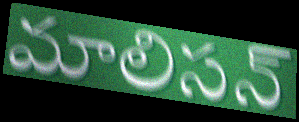
మాలిసన్